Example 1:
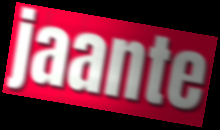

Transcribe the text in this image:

jaante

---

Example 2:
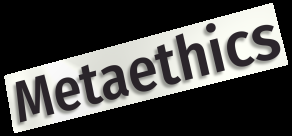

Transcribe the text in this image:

Metaethics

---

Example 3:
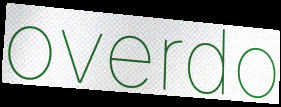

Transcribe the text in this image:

overdo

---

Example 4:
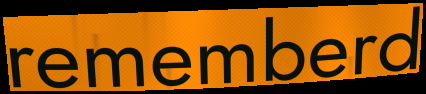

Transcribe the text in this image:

rememberd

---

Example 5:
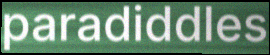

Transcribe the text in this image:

paradiddles